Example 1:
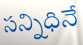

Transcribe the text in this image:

సన్నిధినే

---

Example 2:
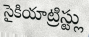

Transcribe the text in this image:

సైకియాట్రిస్ట్లు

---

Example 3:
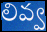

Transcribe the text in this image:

లివ్వ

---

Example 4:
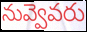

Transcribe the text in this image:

నువ్వెవరు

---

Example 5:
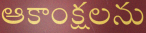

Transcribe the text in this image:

ఆకాంక్షలను